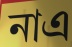
নাএ